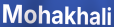
Mohakhali